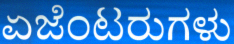
ಏಜೆಂಟರುಗಳು